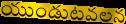
యుండుటవలన